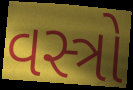
વસ્ત્રો